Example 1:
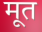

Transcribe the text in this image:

मूत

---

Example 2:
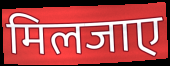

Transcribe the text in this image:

मिलजाए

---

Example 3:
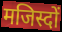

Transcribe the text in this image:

मजिस्दों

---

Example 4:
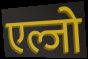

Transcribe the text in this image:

एल्जो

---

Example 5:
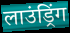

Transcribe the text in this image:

लाउंड्रिंग